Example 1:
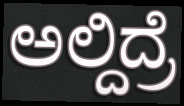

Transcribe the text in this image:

ಅಲ್ದಿದ್ರೆ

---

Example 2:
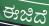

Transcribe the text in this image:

ಈಜಿದೆ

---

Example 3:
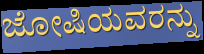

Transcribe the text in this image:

ಜೋಷಿಯವರನ್ನು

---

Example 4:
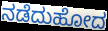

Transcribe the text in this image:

ನಡೆದುಹೋದ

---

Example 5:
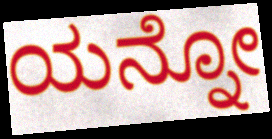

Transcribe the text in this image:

ಯನ್ನೋ